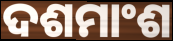
ଦଶମାଂଶ